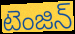
టెంజిన్